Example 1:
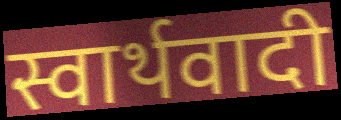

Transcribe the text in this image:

स्वार्थवादी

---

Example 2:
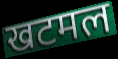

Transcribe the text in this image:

खटमल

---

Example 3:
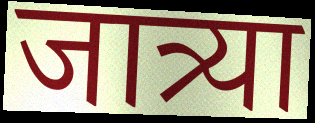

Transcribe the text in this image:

जात्र्या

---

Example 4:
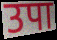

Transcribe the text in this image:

उपा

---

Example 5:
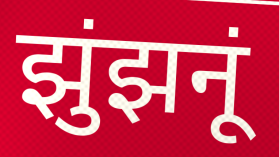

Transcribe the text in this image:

झुंझनूं